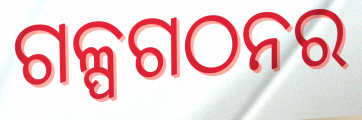
ଗଳ୍ପଗଠନର